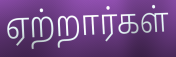
ஏற்றார்கள்